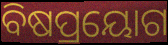
ବିଷପ୍ରୟୋଗ